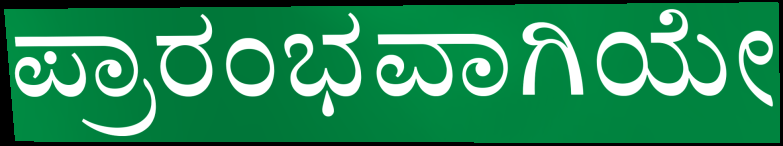
ಪ್ರಾರಂಭವಾಗಿಯೇ